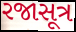
રજાસૂત્ર